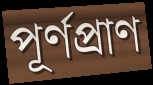
পূর্ণপ্রাণ